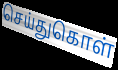
செய்துகொள்